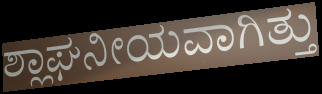
ಶ್ಲಾಘನೀಯವಾಗಿತ್ತು